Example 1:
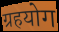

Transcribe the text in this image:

ग्रहयोग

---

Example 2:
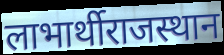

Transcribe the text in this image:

लाभार्थीराजस्थान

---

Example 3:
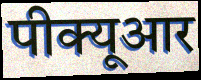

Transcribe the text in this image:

पीक्यूआर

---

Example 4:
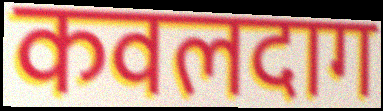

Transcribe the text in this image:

कवलदाग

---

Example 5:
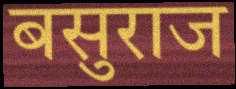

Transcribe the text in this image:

बसुराज